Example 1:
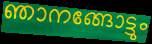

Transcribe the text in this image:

ഞാനങ്ങോട്ടും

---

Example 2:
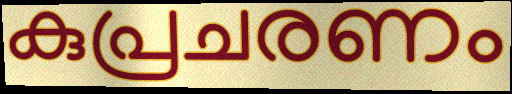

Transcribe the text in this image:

കുപ്രചരണം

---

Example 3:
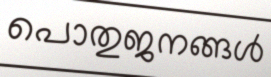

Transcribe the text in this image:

പൊതുജനങ്ങൾ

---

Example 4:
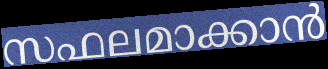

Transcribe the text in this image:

സഫലമാക്കാൻ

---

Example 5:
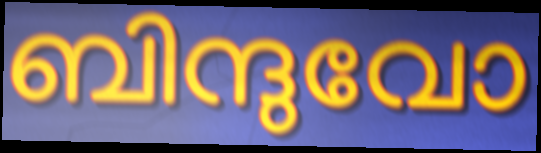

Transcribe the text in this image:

ബിന്ദുവോ